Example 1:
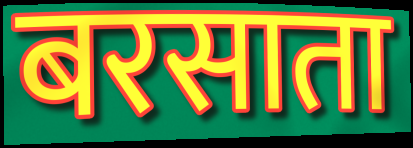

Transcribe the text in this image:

बरसाता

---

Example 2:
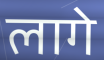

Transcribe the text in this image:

लागे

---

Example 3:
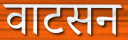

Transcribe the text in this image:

वाटसन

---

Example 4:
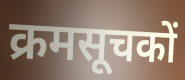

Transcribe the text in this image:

क्रमसूचकों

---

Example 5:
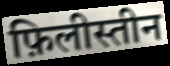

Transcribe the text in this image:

फ़िलीस्तीन